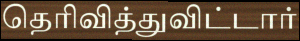
தெரிவித்துவிட்டார்